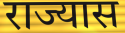
राज्यास